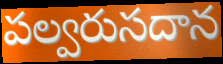
పల్వరుసదాన